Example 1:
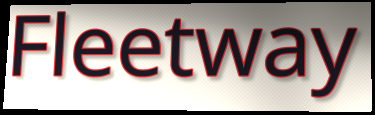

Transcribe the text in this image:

Fleetway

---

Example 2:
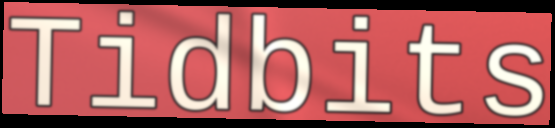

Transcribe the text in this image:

Tidbits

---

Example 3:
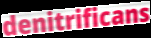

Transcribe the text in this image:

denitrificans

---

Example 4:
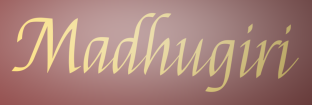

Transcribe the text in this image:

Madhugiri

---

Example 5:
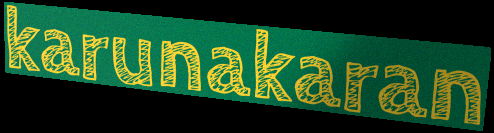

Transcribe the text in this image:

karunakaran